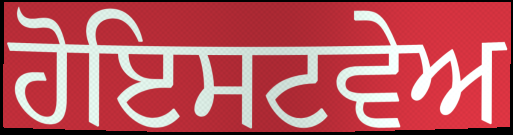
ਹੋਇਸਟਵੇਅ